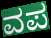
ವಪ